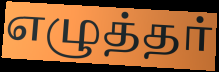
எழுத்தர்